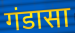
गंडासा